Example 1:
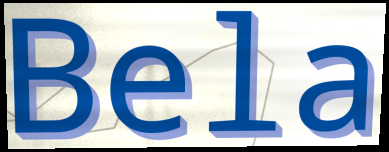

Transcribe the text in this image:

Bela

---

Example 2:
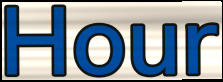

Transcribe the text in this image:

Hour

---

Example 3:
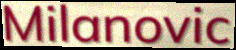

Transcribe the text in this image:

Milanovic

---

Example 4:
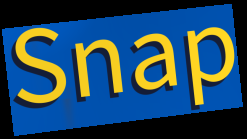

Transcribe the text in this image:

Snap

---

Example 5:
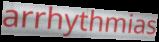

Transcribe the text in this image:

arrhythmias